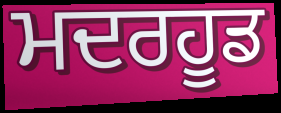
ਮਦਰਹੂਡ